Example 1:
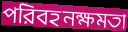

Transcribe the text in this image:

পরিবহনক্ষমতা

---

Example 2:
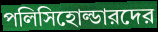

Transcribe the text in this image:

পলিসিহোল্ডারদের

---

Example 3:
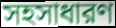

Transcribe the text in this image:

সহসাধারণ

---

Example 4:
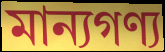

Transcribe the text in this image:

মান্যগণ্য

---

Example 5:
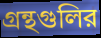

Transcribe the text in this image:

গ্রন্থগুলির